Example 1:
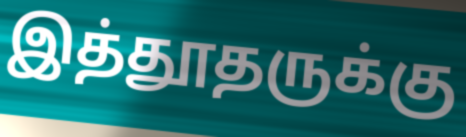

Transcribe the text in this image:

இத்தூதருக்கு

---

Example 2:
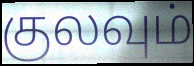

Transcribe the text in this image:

குலவும்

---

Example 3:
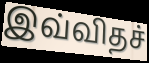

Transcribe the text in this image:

இவ்விதச்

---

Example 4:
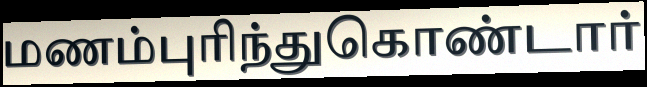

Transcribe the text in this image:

மணம்புரிந்துகொண்டார்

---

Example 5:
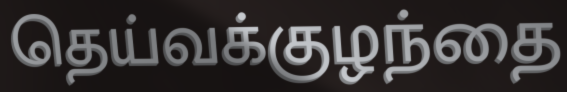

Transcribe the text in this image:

தெய்வக்குழந்தை